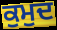
ਕੁਮੁਦ